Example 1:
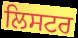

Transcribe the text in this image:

ਲਿਸਟਰ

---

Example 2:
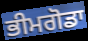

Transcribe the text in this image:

ਭੀਮਗੋਡਾ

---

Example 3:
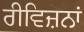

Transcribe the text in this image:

ਰੀਵਿਜ਼ਨਾਂ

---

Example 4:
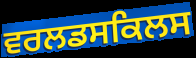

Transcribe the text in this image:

ਵਰਲਡਸਕਿਲਸ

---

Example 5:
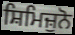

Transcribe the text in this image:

ਸ਼ਿਮਿਜ਼ੁਨੋ